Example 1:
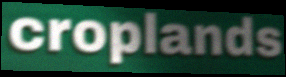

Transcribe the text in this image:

croplands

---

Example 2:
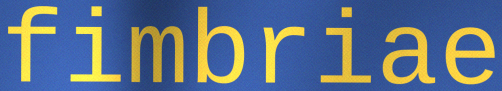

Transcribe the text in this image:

fimbriae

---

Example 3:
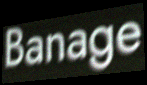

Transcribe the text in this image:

Banage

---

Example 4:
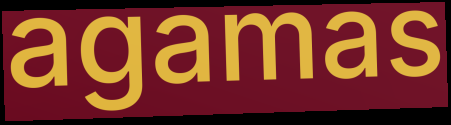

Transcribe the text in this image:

agamas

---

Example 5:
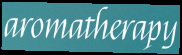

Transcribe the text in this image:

aromatherapy